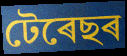
টেৰেছৰ